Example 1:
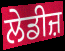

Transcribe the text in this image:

ਲੇਡੀਜ਼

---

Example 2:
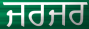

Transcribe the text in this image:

ਜਰਜਰ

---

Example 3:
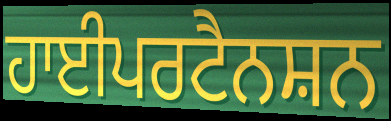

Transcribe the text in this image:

ਹਾਈਪਰਟੈਨਸ਼ਨ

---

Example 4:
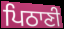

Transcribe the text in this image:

ਪਿਠਾਣੀ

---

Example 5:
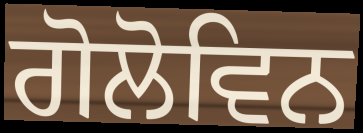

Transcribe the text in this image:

ਗੋਲੋਵਿਨ